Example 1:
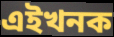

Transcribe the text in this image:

এইখনক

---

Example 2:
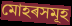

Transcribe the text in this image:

মোহৰসমূহ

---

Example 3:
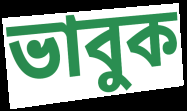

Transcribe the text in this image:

ভাবুক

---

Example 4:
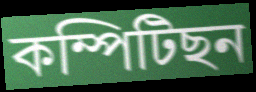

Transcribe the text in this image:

কম্পিটিছন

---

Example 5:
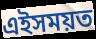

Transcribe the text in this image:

এইসময়ত